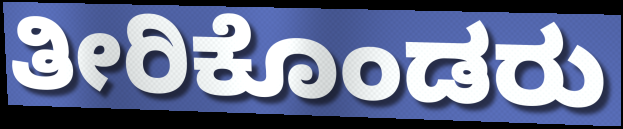
ತೀರಿಕೊಂಡರು